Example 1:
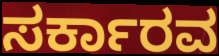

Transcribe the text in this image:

ಸರ್ಕಾರವ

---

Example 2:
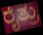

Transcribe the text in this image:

ರೈತ್ರು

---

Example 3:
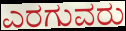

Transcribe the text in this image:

ಎರಗುವರು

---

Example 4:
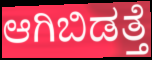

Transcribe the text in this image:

ಆಗಿಬಿಡತ್ತೆ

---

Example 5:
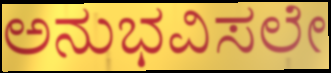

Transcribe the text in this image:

ಅನುಭವಿಸಲೇ